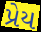
પ્રેય